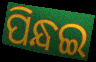
ପିନ୍ଧଇ